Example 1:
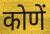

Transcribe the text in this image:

कोणें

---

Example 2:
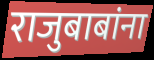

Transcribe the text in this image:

राजुबाबांना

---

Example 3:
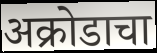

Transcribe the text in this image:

अक्रोडाचा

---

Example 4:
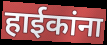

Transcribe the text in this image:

हाईकांना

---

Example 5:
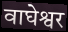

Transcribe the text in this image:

वाघेश्वर